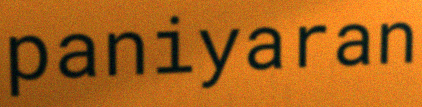
paniyaran